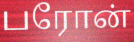
பரோன்